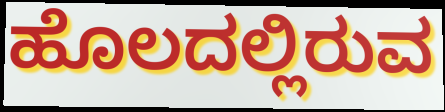
ಹೊಲದಲ್ಲಿರುವ